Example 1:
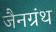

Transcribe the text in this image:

जैनग्रंथ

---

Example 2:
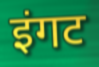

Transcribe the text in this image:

इंगट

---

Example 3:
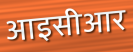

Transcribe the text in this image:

आइसीआर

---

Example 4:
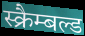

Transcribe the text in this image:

स्क्रैम्बल्ड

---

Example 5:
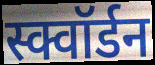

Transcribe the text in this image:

स्क्वॉर्डन